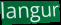
langur